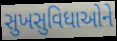
સુખસુવિધાઓને